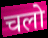
चलो